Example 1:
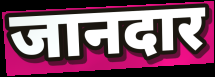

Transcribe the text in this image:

जानदार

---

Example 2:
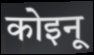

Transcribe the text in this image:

कोइनू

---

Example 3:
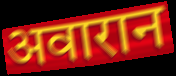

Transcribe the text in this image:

अवारान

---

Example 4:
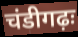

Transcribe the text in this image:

चंडीगढ़ः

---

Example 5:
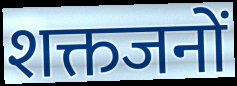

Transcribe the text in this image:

शक्तजनों